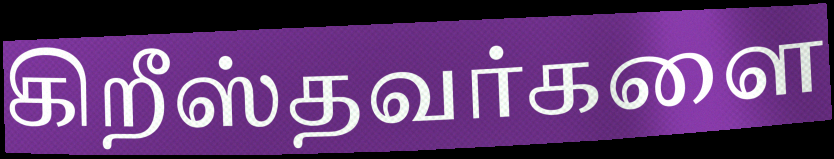
கிறீஸ்தவர்களை